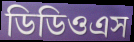
ডিডিওএস